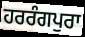
ਹਰਰੰਗਪੁਰਾ